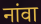
नांवा